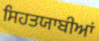
ਸਿਹਤਯਾਬੀਆਂ